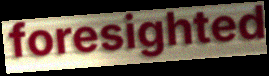
foresighted